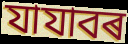
যাযাবৰ